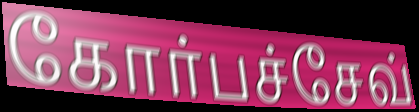
கோர்பச்சேவ்